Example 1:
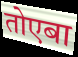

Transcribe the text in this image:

तोएबा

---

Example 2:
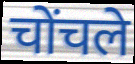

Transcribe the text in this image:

चोंचले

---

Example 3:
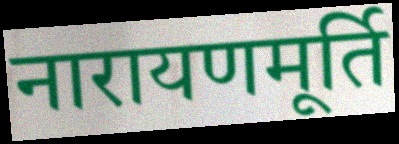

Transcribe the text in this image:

नारायणमूर्ति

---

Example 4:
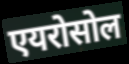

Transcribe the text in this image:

एयरोसोल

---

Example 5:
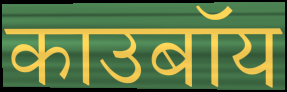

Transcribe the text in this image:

काउबॉय